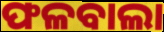
ଫଳବାଲା